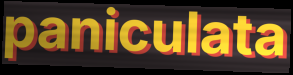
paniculata